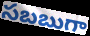
సబబుగా